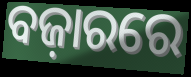
ବଜ଼ାରରେ